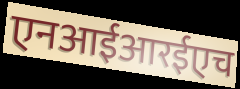
एनआईआरईएच